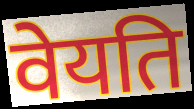
वेयति